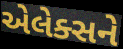
એલેક્સને